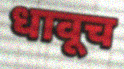
धावूच